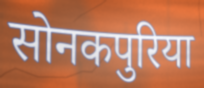
सोनकपुरिया